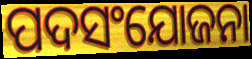
ପଦସଂଯୋଜନା